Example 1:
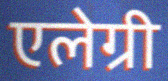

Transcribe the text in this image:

एलेग्री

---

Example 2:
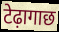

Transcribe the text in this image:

टेढ़ागाछ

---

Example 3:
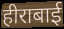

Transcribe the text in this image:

हीराबाई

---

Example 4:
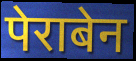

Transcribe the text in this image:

पेराबेन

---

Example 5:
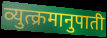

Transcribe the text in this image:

व्युत्क्रमानुपाती